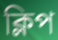
ক্লিপ